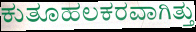
ಕುತೂಹಲಕರವಾಗಿತ್ತು